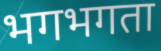
भगभगता